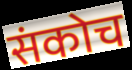
संकोच